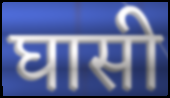
घासी